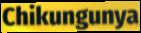
Chikungunya